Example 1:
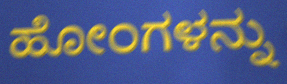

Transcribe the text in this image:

ಹೋಂಗಳನ್ನು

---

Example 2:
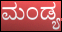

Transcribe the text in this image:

ಮಂಡ್ಯ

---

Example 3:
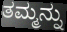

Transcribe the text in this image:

ತಮ್ಮನ್ನು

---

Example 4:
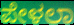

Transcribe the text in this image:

ಪೇಳಲಾ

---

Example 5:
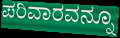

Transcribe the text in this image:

ಪರಿವಾರವನ್ನೂ